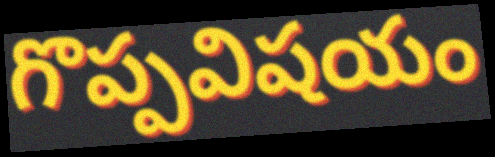
గొప్పవిషయం